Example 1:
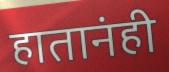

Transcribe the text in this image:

हातानंही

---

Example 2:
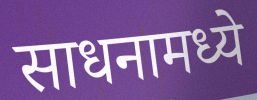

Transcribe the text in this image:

साधनामध्ये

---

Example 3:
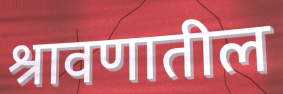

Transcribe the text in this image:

श्रावणातील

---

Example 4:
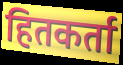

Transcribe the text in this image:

हितकर्ता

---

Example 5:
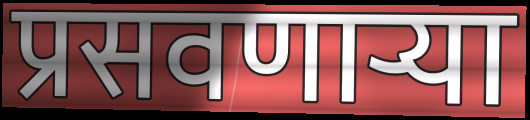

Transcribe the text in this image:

प्रसवणाऱ्या